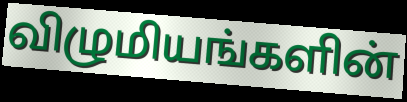
விழுமியங்களின்